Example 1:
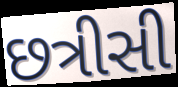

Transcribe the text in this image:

છત્રીસી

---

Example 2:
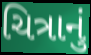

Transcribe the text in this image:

ચિત્રાનું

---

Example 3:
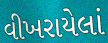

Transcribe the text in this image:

વીખરાયેલાં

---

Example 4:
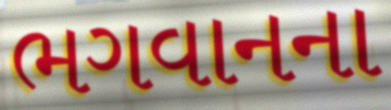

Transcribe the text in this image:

ભગવાનના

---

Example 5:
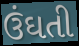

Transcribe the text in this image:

ઉંઘતી